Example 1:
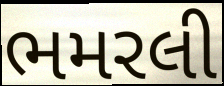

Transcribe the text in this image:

ભમરલી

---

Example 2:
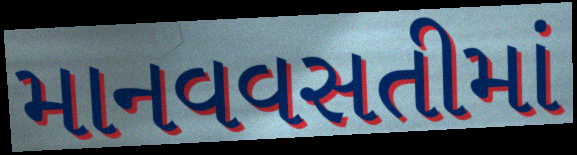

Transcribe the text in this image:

માનવવસતીમાં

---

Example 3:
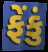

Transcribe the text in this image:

ફેંકું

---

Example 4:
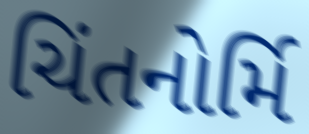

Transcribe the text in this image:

ચિંતનોર્મિ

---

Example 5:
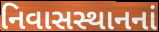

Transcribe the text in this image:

નિવાસસ્થાનનાં